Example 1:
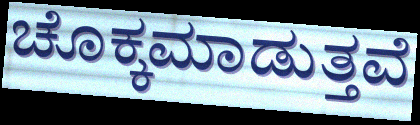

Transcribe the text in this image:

ಚೊಕ್ಕಮಾಡುತ್ತವೆ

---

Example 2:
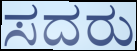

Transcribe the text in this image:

ಸದರು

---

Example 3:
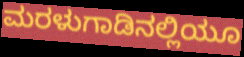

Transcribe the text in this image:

ಮರಳುಗಾಡಿನಲ್ಲಿಯೂ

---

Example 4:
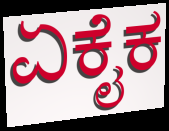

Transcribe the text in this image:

ಏಕೈಕ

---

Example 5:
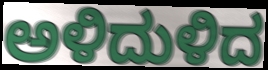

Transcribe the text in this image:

ಅಳಿದುಳಿದ